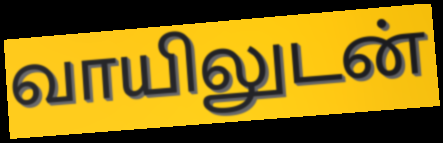
வாயிலுடன்